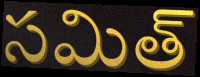
సమిత్